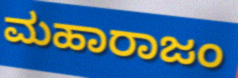
ಮಹಾರಾಜಂ